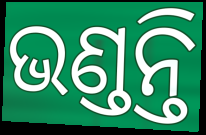
ଭଣ୍ଡନ୍ତି